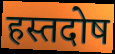
हस्तदोष